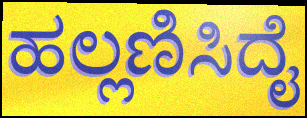
ಹಲ್ಲಣಿಸಿದೈ